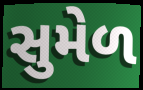
સુમેળ